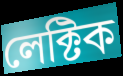
লেক্টিক